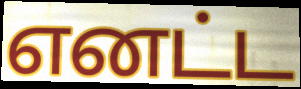
எனட்ட